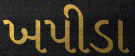
ખપીડા